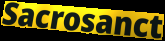
Sacrosanct